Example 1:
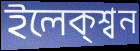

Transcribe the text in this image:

ইলেক্‌শ্বন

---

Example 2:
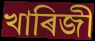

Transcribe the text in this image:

খাৰিজী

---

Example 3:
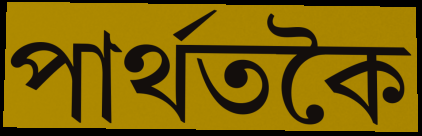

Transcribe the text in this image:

পাৰ্থতকৈ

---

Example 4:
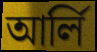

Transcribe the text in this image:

আৰ্লি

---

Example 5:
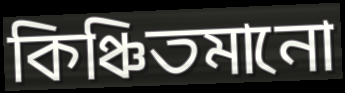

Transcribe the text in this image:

কিঞ্চিতমানো